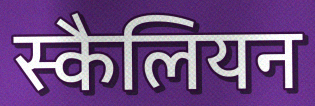
स्कैलियन